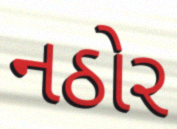
નઠોર